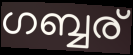
ഗബ്ബര്